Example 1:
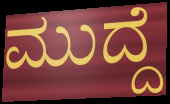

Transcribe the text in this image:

ಮುದ್ದೆ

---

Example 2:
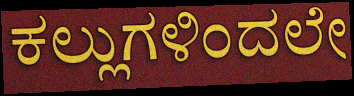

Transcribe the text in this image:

ಕಲ್ಲುಗಳಿಂದಲೇ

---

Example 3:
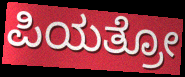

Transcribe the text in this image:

ಪಿಯತ್ರೋ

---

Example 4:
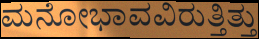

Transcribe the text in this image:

ಮನೋಭಾವವಿರುತ್ತಿತ್ತು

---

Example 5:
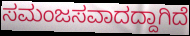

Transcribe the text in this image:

ಸಮಂಜಸವಾದದ್ದಾಗಿದೆ